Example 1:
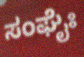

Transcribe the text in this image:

ಸಂಘೈಃ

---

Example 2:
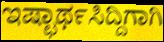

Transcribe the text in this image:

ಇಷ್ಟಾರ್ಥಸಿದ್ದಿಗಾಗಿ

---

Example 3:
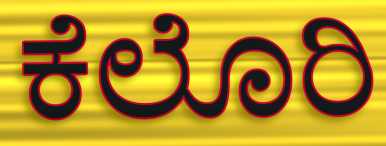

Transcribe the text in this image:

ಕೆಲೊರಿ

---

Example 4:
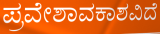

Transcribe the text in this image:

ಪ್ರವೇಶಾವಕಾಶವಿದೆ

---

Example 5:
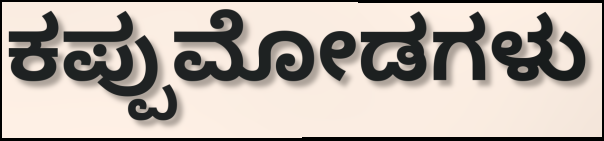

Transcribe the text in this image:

ಕಪ್ಪುಮೋಡಗಳು